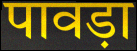
पावड़ा